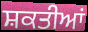
ਸ਼ਕਤੀਆਂ